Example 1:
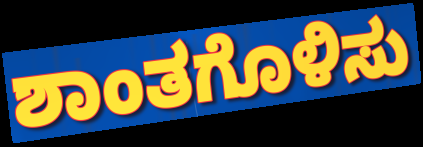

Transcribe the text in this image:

ಶಾಂತಗೊಳಿಸು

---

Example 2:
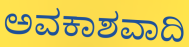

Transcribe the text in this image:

ಅವಕಾಶವಾದಿ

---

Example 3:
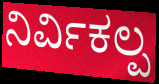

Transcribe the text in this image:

ನಿರ್ವಿಕಲ್ಪ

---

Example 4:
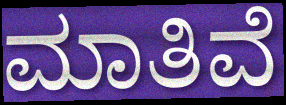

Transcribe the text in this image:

ಮಾತಿವೆ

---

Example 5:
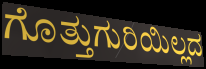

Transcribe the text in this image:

ಗೊತ್ತುಗುರಿಯಿಲ್ಲದ